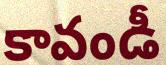
కావండీ